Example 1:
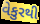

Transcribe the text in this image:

વેકુરથી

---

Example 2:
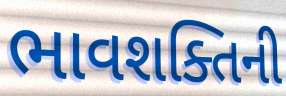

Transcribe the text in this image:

ભાવશક્તિની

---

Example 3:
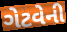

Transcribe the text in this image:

ગેટવેની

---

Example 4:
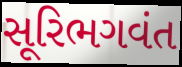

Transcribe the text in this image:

સૂરિભગવંત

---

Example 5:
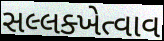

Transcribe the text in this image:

સલ્લક્ખેત્વાવ